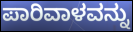
ಪಾರಿವಾಳವನ್ನು